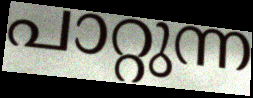
പാറ്റുന്ന